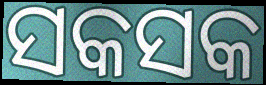
ସକସକ